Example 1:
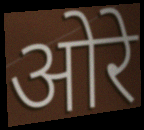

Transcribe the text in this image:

ओरे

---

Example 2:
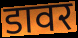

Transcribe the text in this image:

डावर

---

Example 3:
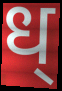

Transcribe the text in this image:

ध्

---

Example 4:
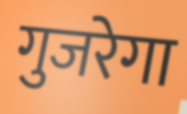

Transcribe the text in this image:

गुजरेगा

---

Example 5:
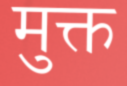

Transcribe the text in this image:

मुक्त